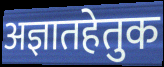
अज्ञातहेतुक